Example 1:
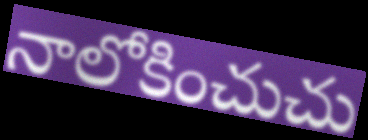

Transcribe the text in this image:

నాలోకించుచు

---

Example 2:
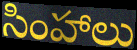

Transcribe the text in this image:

సింహాలు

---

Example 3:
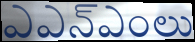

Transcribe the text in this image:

ఎఎన్ఎంలు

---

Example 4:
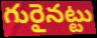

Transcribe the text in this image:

గురైనట్టు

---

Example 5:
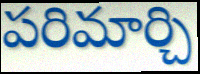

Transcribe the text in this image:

పరిమార్చి